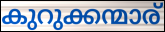
കുറുക്കന്മാര്